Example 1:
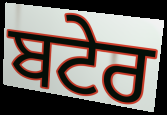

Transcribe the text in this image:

ਬਟੇਰ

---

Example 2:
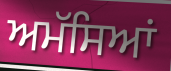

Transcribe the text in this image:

ਅਮੱਸਿਆਂ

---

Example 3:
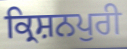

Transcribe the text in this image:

ਕ੍ਰਿਸ਼ਨਪੁਰੀ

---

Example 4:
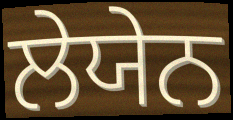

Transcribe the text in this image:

ਲੇਯੇਨ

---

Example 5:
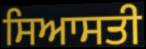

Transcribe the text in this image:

ਸਿਆਸਤੀ